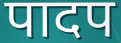
पादप